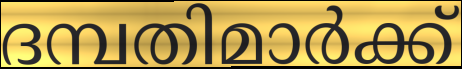
ദമ്പതിമാർക്ക്